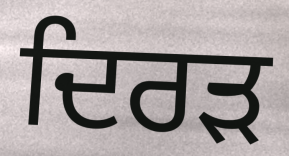
ਦਿਰੜ